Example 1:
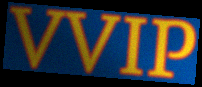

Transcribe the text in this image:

VVIP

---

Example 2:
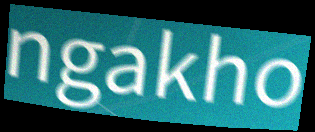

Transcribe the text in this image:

ngakho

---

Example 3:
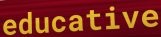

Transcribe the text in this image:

educative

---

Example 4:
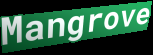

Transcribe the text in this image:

Mangrove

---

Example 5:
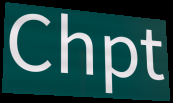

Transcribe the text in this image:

Chpt